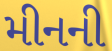
મીનની